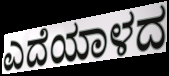
ಎದೆಯಾಳದ